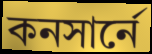
কনসার্নে